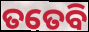
ତତେବି